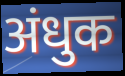
अंधुक